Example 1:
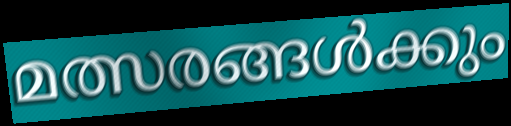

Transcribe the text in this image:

മത്സരങ്ങൾക്കും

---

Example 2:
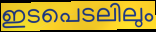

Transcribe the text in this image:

ഇടപെടലിലും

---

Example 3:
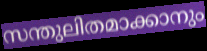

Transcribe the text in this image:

സന്തുലിതമാക്കാനും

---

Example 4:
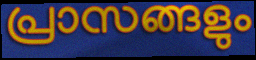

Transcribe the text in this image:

പ്രാസങ്ങളും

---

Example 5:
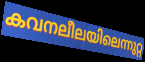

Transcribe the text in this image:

കവനലീലയിലെന്നുറ്റ